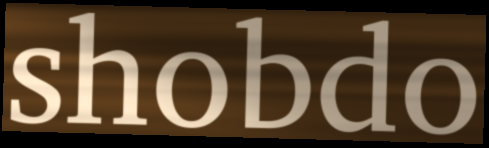
shobdo